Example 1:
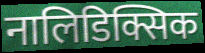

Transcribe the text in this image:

नालिडिक्सिक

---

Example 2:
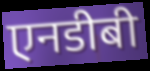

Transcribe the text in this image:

एनडीबी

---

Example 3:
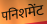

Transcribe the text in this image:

पनिशमेंट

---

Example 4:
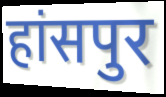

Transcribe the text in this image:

हांसपुर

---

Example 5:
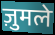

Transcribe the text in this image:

ज़ुमले